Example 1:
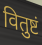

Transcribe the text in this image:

वितुष्टं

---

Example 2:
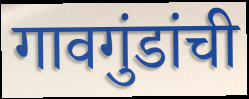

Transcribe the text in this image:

गावगुंडांची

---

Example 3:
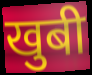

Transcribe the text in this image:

खुबी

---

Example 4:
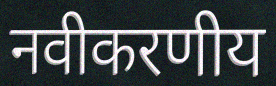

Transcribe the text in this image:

नवीकरणीय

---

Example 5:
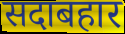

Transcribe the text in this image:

सदाबहार